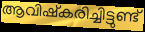
ആവിഷ്കരിച്ചിട്ടുണ്ട്